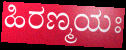
ಹಿರಣ್ಮಯಃ